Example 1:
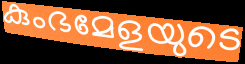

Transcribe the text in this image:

കുംഭമേളയുടെ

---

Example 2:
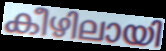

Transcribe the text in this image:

കീഴിലായി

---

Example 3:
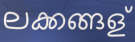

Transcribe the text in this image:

ലക്കങ്ങള്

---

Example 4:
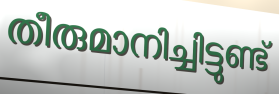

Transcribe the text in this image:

തീരുമാനിച്ചിട്ടുണ്ട്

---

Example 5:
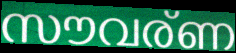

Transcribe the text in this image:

സൗവര്ണ